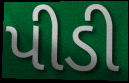
પીડી